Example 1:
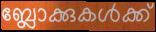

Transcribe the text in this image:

ബ്ലോക്കുകൾക്ക്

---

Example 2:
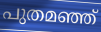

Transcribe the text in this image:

പുതമഞ്ഞ്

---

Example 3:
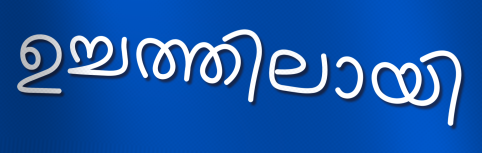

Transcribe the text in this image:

ഉച്ചത്തിലായി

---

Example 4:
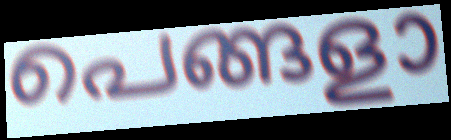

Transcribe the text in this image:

പെങ്ങളാ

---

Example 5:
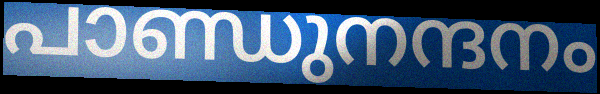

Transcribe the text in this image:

പാണ്ഡുനന്ദനം